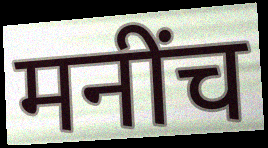
मनींच